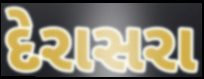
દેરાસરા